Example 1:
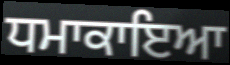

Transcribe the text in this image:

ਧਮਾਕਾਇਆ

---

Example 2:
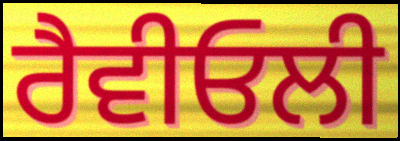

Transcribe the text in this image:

ਰੈਵੀਓਲੀ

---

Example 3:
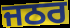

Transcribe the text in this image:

ਜਠਰ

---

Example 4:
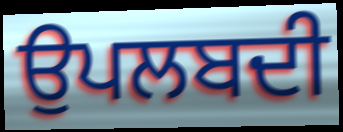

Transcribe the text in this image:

ਉਪਲਬਦੀ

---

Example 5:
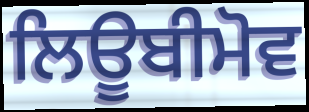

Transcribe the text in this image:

ਲਿਊਬੀਮੋਵ